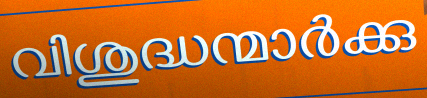
വിശുദ്ധന്മാർക്കു